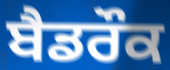
ਬੈਡਰੌਕ